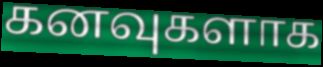
கனவுகளாக